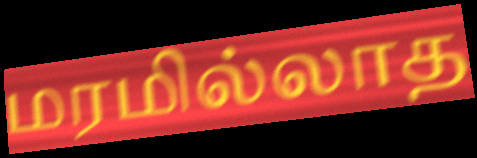
மரமில்லாத